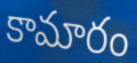
కామారం